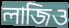
লাজিও